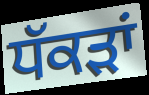
ਧੱਕੜਾਂ